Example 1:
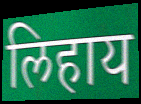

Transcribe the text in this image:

लिहाय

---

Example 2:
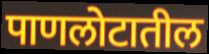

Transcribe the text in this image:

पाणलोटातील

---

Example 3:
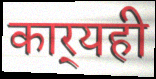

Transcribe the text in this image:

कार्यही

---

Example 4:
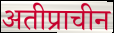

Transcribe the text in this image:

अतीप्राचीन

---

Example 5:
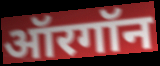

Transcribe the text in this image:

ऑरगॉन